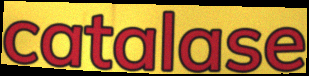
catalase